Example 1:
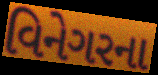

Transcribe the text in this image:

વિનેગરના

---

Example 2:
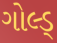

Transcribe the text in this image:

ગોલ્ડ્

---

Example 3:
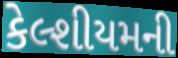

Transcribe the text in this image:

કેલ્શીયમની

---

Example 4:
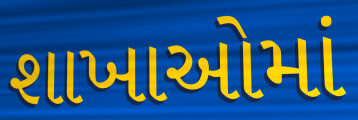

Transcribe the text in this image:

શાખાઓમાં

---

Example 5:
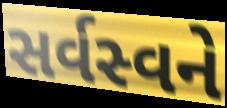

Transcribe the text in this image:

સર્વસ્વને